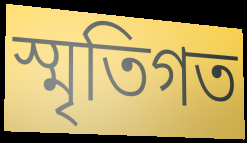
স্মৃতিগত